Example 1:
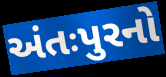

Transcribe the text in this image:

અંતઃપુરનો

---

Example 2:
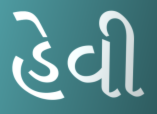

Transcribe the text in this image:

હેવી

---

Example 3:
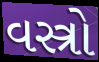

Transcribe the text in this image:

વસ્ત્રો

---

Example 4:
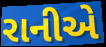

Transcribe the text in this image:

રાનીએ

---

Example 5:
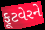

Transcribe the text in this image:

ફૂટવેરને